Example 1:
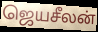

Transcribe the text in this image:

ஜெயசீலன்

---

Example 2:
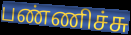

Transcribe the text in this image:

பண்ணிச்சு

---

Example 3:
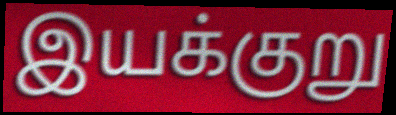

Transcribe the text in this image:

இயக்குறு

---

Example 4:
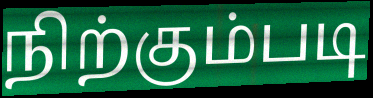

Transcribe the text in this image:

நிற்கும்படி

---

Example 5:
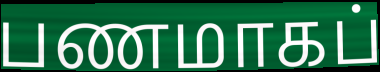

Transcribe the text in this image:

பணமாகப்